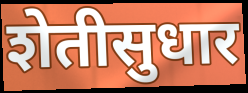
शेतीसुधार